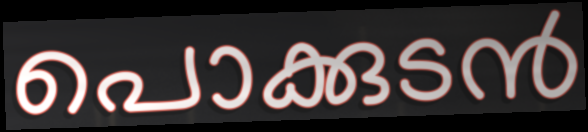
പൊക്കുടൻ